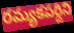
రమ్యకపర్దిని